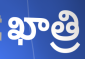
ఖాత్రి